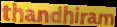
thandhiram